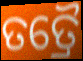
ତତ୍ରୈ